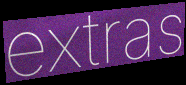
extras